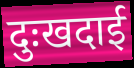
दुःखदाई